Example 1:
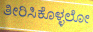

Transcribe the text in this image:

ತೀರಿಸಿಕೊಳ್ಳಲೋ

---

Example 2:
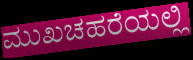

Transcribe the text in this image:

ಮುಖಚಹರೆಯಲ್ಲಿ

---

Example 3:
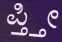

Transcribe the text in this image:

ಪ್ತ್ತೀ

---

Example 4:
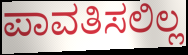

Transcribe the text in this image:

ಪಾವತಿಸಲಿಲ್ಲ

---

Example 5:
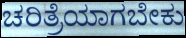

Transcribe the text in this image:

ಚರಿತ್ರೆಯಾಗಬೇಕು